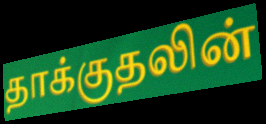
தாக்குதலின்